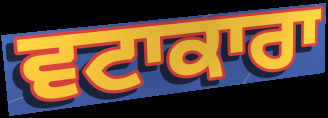
ਵਟਾਕਾਰਾ